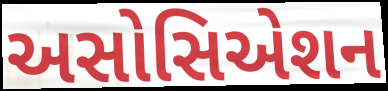
અસોસિએશન